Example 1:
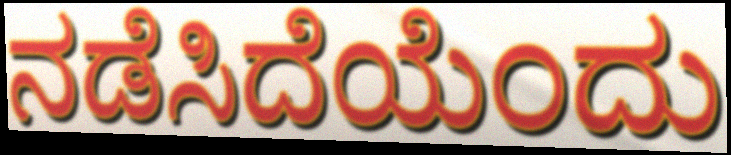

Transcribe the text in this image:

ನಡೆಸಿದೆಯೆಂದು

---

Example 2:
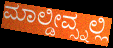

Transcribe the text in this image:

ಮಾಲ್ಡೀವ್ಸ್ನಲ್ಲಿ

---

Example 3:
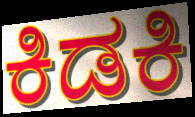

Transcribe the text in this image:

ಕಿಡಕಿ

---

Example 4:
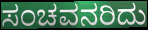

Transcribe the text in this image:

ಸಂಚವನರಿದು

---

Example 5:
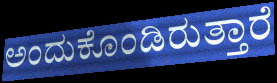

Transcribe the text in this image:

ಅಂದುಕೊಂಡಿರುತ್ತಾರೆ